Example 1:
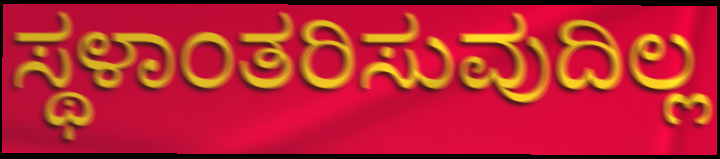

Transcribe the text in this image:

ಸ್ಥಳಾಂತರಿಸುವುದಿಲ್ಲ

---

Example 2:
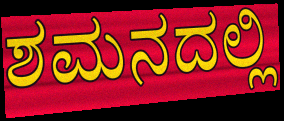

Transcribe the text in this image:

ಶಮನದಲ್ಲಿ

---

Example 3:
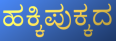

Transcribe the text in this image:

ಹಕ್ಕಿಪುಕ್ಕದ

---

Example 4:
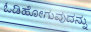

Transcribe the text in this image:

ಓಡಿಹೋಗುವುದನ್ನು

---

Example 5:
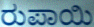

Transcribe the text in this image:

ರುಪಾಯಿ